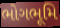
ભોગભૂમિ